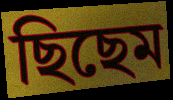
ছিছেম